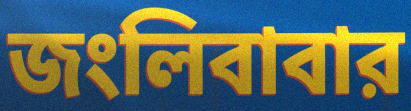
জংলিবাবার